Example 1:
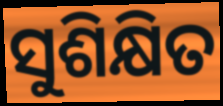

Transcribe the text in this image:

ସୁଶିକ୍ଷିତ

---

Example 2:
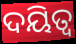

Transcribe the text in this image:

ଦୟିତ୍ୱ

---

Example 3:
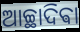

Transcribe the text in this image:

ଆଚ୍ଛାଦିଵା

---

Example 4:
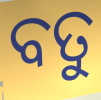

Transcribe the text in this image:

ବତୁ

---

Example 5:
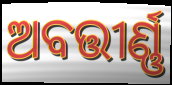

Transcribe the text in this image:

ଅବତ୍ତୀର୍ଣ୍ଣ